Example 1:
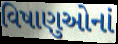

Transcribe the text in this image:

વિષાણુઓનાં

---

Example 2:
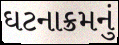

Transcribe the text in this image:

ઘટનાક્રમનું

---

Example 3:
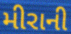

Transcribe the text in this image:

મીરાની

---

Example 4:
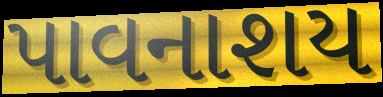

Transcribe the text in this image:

પાવનાશય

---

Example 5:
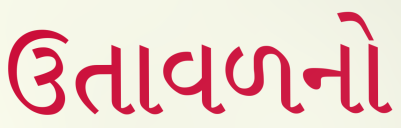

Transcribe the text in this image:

ઉતાવળનો